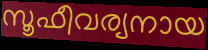
സൂഫീവര്യനായ